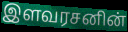
இளவரசனின்